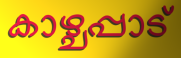
കാഴ്ചപ്പാട്